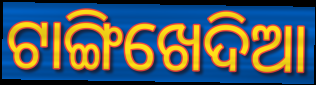
ଟାଙ୍ଗିଖେଦିଆ